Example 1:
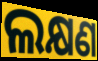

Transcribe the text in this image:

ଲକ୍ଷଣ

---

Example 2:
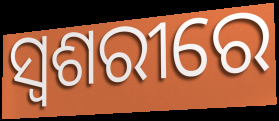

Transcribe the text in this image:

ସ୍ୱଶରୀରେ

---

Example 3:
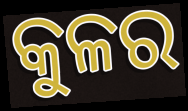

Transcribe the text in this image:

କୁଳର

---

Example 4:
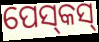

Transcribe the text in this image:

ପେସ୍‌କସ୍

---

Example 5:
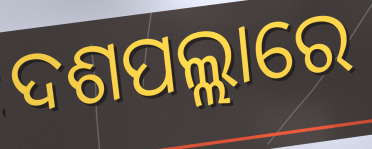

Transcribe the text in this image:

ଦଶପଲ୍ଲାରେ